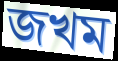
জখম